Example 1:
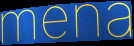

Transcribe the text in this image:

mena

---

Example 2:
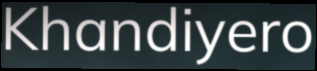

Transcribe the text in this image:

Khandiyero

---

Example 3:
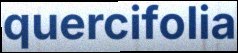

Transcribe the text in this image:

quercifolia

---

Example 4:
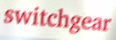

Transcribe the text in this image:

switchgear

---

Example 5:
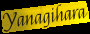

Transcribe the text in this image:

Yanagihara